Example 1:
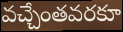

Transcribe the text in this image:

వచ్చేంతవరకూ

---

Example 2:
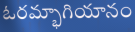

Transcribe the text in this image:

ఓరమ్భాగియానం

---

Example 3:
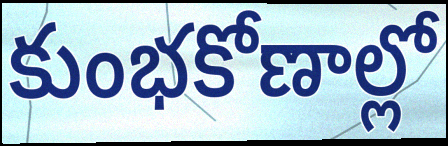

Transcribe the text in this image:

కుంభకోణాల్లో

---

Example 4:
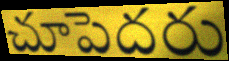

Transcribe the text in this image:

చూపెదరు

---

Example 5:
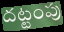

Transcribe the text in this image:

దట్టంపు